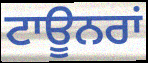
ਟਾਊਨਰਾਂ